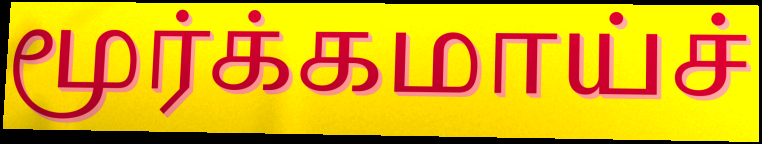
மூர்க்கமாய்ச்